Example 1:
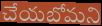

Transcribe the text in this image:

చేయబోమని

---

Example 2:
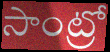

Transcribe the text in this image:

సాంట్రో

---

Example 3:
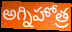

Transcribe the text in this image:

అగ్నిహోత్ర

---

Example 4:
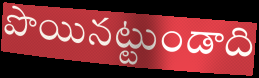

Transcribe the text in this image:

పొయినట్టుండాది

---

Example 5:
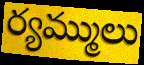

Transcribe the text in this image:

ర్యమ్ములు